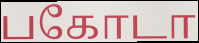
பகோடா